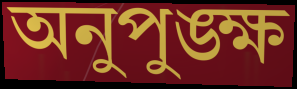
অনুপুঙ্ক্ষ